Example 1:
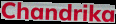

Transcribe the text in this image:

Chandrika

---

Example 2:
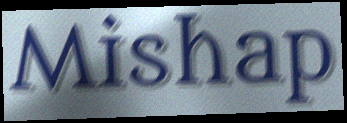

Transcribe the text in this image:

Mishap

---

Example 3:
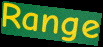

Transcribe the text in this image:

Range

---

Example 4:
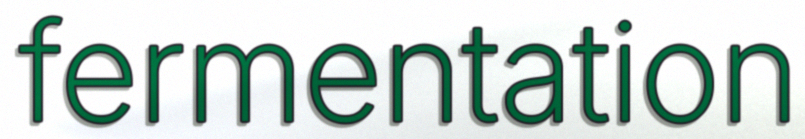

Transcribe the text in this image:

fermentation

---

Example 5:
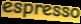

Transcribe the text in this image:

espresso